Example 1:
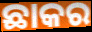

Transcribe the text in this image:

ଛାକର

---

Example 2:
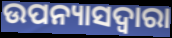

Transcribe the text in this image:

ଉପନ୍ୟାସଦ୍ୱାରା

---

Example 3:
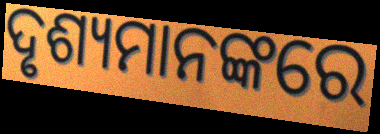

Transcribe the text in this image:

ଦୃଶ୍ୟମାନଙ୍କରେ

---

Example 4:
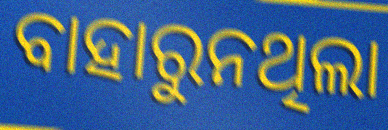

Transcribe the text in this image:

ବାହାରୁନଥିଲା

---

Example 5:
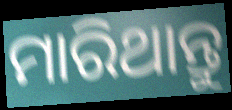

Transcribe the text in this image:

ମାରିଥାନ୍ତୁ